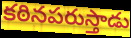
కఠినపరుస్తాడు